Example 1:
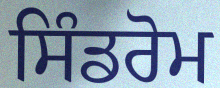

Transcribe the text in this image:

ਸਿੰਡਰੋਮ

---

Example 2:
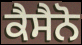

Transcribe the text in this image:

ਕੈਸੈਨੋ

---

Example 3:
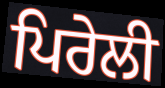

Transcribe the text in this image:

ਪਿਰੇਲੀ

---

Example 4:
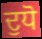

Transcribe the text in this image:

ਦੁਧੋ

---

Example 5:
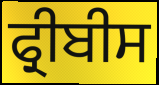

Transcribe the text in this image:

ਫ੍ਰੀਬੀਸ